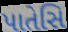
પાતેસિ